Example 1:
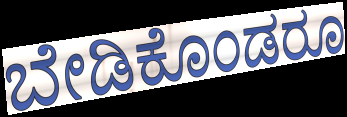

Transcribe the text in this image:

ಬೇಡಿಕೊಂಡರೂ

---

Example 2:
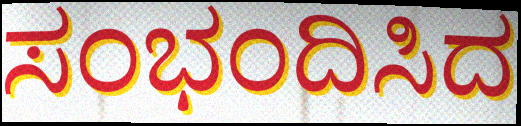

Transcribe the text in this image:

ಸಂಭಂದಿಸಿದ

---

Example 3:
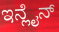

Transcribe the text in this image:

ಇನ್ಲೈನ್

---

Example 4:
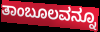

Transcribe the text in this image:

ತಾಂಬೂಲವನ್ನೂ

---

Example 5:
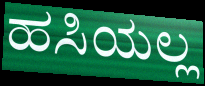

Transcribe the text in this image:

ಹಸಿಯಲ್ಲ